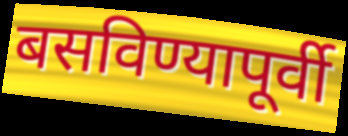
बसविण्यापूर्वी